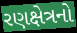
રણક્ષેત્રનો